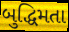
બુદ્ધિમતા